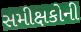
સમીક્ષકોની